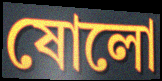
ষোলো